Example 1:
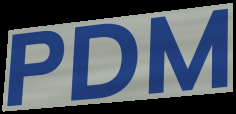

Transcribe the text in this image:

PDM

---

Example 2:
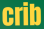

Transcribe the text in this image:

crib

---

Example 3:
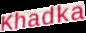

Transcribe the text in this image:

Khadka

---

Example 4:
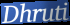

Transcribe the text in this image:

Dhruti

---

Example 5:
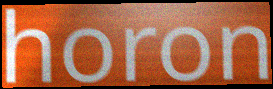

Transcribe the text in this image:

horon